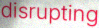
disrupting